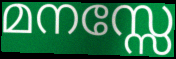
മനസ്സേ